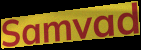
Samvad